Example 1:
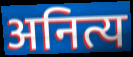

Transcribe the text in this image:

अनित्य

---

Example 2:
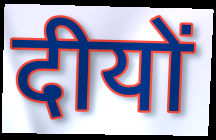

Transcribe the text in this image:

दीयों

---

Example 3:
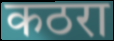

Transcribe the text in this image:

कठरा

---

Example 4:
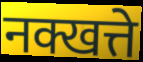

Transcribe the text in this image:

नक्खत्ते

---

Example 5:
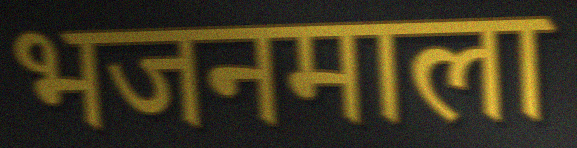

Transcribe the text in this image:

भजनमाला